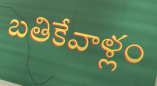
బతికేవాళ్లం